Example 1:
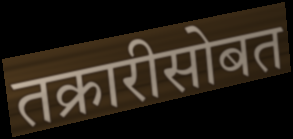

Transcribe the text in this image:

तक्रारीसोबत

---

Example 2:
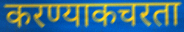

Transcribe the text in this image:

करण्याकचरता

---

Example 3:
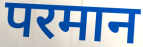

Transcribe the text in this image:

परमान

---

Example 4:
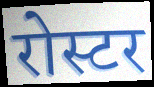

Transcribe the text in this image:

रोस्टर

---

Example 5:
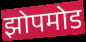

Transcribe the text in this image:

झोपमोड